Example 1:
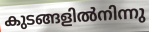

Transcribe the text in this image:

കുടങ്ങളിൽനിന്നു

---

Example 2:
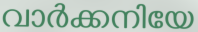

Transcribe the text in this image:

വാർക്കനിയേ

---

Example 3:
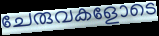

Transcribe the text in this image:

ചേരുവകളോടെ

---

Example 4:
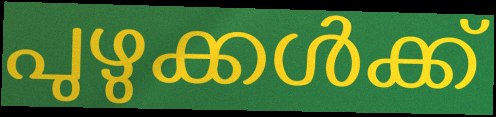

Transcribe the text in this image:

പുഴുക്കൾക്ക്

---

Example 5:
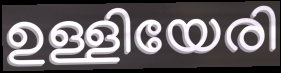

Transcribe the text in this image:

ഉള്ളിയേരി